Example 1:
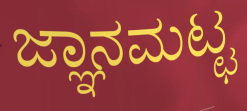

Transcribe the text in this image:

ಜ್ಞಾನಮಟ್ಟ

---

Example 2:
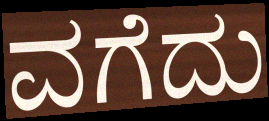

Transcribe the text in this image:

ವಗೆದು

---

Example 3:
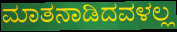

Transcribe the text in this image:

ಮಾತನಾಡಿದವಳಲ್ಲ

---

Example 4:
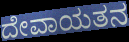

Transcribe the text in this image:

ದೇವಾಯತನ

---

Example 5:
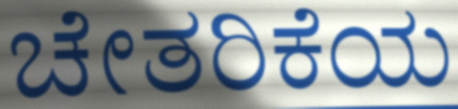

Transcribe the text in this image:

ಚೇತರಿಕೆಯ